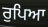
ਰੁਪਿਆ